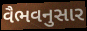
વૈભવનુસાર